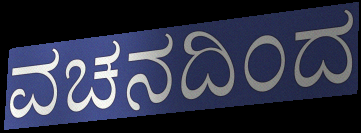
ವಚನದಿಂದ